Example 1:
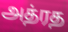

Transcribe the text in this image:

அத்ரத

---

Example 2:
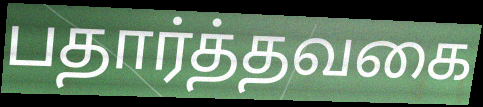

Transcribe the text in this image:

பதார்த்தவகை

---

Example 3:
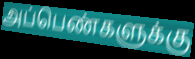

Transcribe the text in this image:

அப்பெண்களுக்கு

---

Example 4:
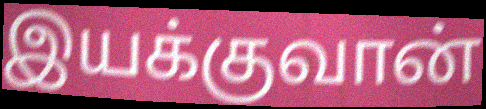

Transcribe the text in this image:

இயக்குவான்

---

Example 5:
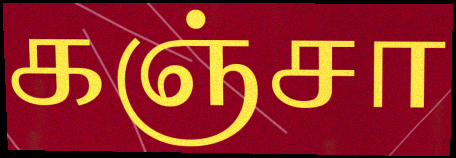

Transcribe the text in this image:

கஞ்சா